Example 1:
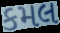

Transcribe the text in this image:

કમલ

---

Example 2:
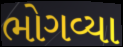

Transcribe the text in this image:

ભોગવ્યા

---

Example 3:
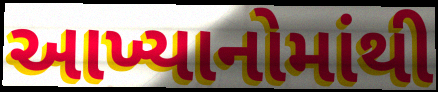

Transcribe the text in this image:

આખ્યાનોમાંથી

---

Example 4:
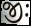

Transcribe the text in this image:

જીઃ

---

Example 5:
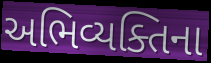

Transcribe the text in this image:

અભિવ્યક્તિના